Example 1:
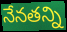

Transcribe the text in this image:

నేనతన్ని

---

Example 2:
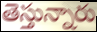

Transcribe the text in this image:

తెస్తున్నారు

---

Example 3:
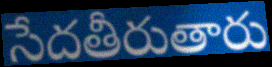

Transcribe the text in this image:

సేదతీరుతారు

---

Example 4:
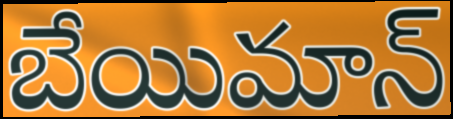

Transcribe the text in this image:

బేయిమాన్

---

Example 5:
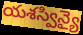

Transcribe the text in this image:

యశస్విన్యై